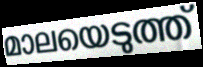
മാലയെടുത്ത്